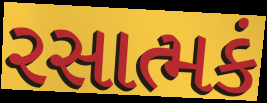
રસાત્મકં